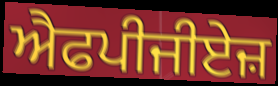
ਐਫਪੀਜੀਏਜ਼